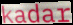
kadar